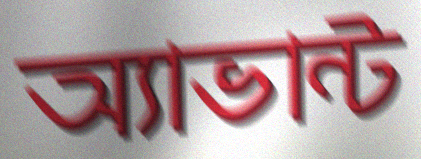
অ্যাভান্ট